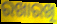
ରଖାରଖି